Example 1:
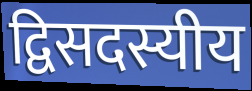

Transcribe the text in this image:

द्विसदस्यीय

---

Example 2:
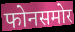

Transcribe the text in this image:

फोनसमोर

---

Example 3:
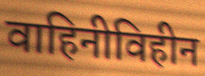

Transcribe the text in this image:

वाहिनीविहीन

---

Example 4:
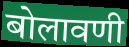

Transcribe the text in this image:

बोलावणी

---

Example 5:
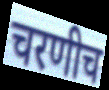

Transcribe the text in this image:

चरणीच